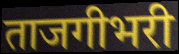
ताजगीभरी